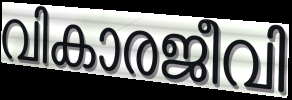
വികാരജീവി